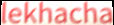
lekhacha